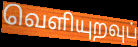
வெளியுறவுப்